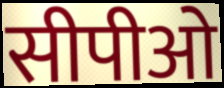
सीपीओ